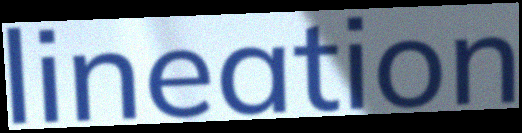
lineation